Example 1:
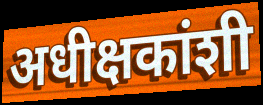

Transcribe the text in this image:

अधीक्षकांशी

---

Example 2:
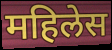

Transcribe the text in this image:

महिलेस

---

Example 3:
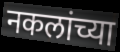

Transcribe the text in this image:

नकलांच्या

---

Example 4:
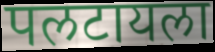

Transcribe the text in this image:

पलटायला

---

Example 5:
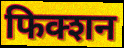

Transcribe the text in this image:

फिक्शन